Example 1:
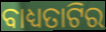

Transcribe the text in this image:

ବାଧ୍ୟତାଟିର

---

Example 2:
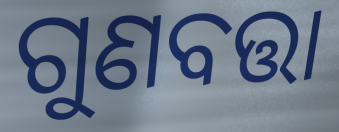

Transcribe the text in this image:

ଗୁଣବତ୍ତା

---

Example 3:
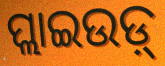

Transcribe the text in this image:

ପ୍ଲାଇଉଡ଼୍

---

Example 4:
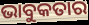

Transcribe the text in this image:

ଭାବୁକତାର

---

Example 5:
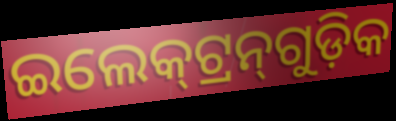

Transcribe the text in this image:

ଇଲେକ୍‍ଟ୍ରନ୍‍ଗୁଡ଼ିକ